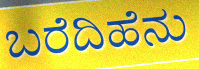
ಬರೆದಿಹೆನು